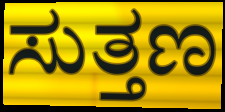
ಸುತ್ತಣ